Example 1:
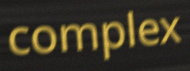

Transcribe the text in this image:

complex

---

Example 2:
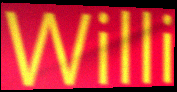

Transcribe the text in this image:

Willi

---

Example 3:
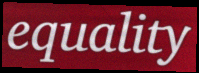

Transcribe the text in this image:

equality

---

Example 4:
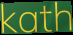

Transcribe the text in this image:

kath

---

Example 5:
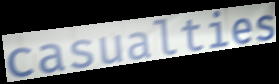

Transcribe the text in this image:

casualties